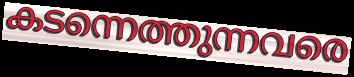
കടന്നെത്തുന്നവരെ